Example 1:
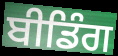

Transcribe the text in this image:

ਬੀਡਿੰਗ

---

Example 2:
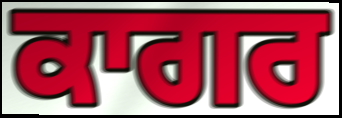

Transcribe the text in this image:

ਕਾਗਰ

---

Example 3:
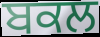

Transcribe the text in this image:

ਬਕਲ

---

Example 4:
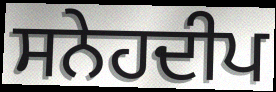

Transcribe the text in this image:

ਸਨੇਹਦੀਪ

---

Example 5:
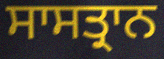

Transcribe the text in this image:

ਸਾਸਤ੍ਰਾਨ